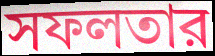
সফলতার